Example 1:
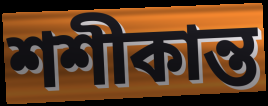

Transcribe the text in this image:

শশীকান্ত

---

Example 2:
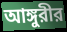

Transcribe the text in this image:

আঙ্গুরীর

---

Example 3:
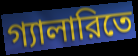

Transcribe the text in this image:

গ্যালারিতে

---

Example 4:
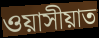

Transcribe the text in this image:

ওয়াসীয়াত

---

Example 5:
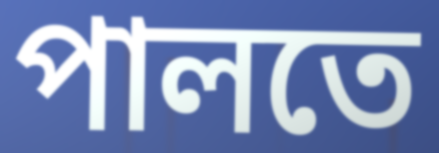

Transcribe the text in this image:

পালতে